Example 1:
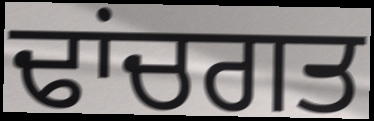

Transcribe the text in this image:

ਢਾਂਚਗਤ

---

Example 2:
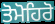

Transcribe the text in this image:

ਤੋਮੋਹਿਰੋ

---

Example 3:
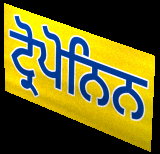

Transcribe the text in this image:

ਟ੍ਰੋਪੋਨਿਨ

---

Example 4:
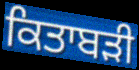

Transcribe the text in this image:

ਕਿਤਾਬੜੀ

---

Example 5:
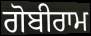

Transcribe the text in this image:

ਗੋਬੀਰਾਮ